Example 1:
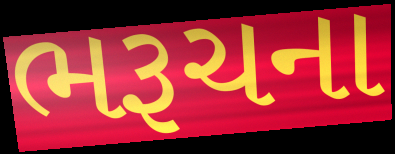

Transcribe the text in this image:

ભરૂચના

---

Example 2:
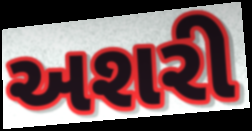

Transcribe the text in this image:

અશરી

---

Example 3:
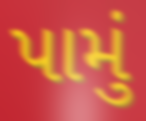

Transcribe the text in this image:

પામું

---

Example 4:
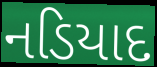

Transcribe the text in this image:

નડિયાદ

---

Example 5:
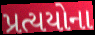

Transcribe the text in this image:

પ્રત્યયોના